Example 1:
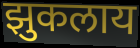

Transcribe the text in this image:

झुकलाय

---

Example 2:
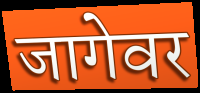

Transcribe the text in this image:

जागेवर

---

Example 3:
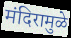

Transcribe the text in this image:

मंदिरामुळे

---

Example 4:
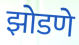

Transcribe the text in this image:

झोडणे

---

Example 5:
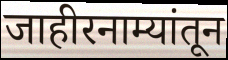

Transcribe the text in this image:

जाहीरनाम्यांतून